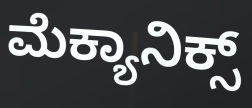
ಮೆಕ್ಯಾನಿಕ್ಸ್